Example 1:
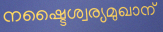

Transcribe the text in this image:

നഷ്ടൈശ്വര്യമുഖാന്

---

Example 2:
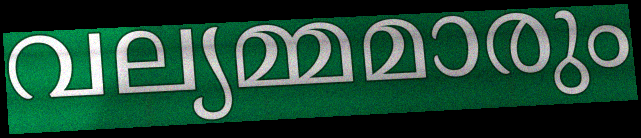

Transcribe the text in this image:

വല്യമ്മമാരും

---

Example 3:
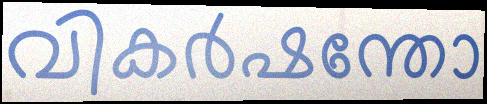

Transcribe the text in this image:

വികർഷന്തോ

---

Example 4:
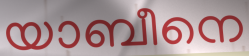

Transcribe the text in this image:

യാബീനെ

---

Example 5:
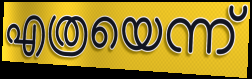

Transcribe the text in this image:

എത്രയെന്ന്